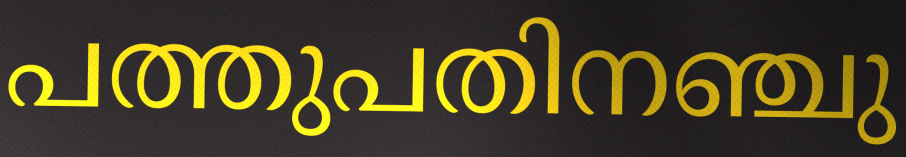
പത്തുപതിനഞ്ചു